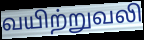
வயிற்றுவலி